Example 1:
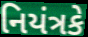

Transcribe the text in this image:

નિયંત્રકે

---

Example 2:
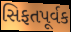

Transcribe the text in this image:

સિફતપૂર્વક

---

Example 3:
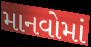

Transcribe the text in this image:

માનવોમાં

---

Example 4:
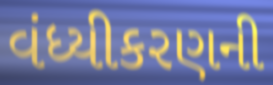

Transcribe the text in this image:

વંધ્યીકરણની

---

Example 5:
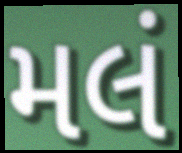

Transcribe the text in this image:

મલં